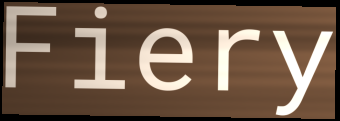
Fiery